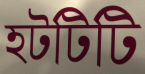
হটটিটি